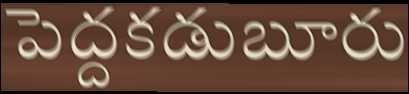
పెద్దకడుబూరు